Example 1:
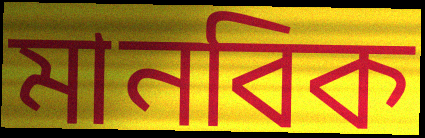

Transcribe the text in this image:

মানবিক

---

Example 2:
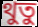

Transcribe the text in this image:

থুতু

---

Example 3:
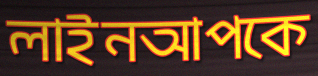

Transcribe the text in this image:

লাইনআপকে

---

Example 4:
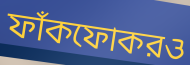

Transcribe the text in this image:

ফাঁকফোকরও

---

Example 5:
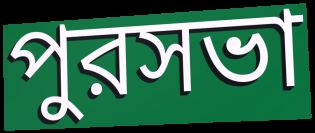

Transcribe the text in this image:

পুরসভা